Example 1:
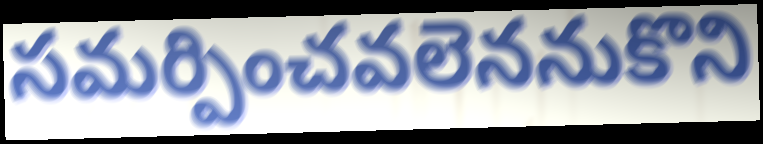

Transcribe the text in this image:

సమర్పించవలెననుకొని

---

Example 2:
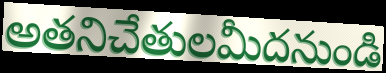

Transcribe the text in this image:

అతనిచేతులమీదనుండి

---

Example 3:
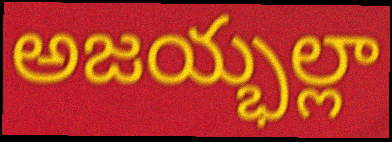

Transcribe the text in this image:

అజయ్భల్లా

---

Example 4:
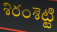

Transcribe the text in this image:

శిరంశెట్టి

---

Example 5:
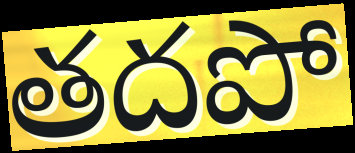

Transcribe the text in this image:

తదపో